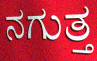
ನಗುತ್ತ